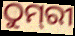
ଠୁମ୍‌ରୀ